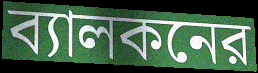
ব্যালকনের